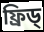
ফ্ৰিড্